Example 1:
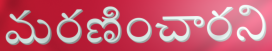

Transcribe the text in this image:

మరణించారని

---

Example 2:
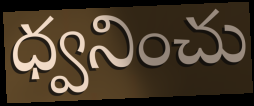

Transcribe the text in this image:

ధ్వనించు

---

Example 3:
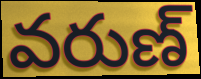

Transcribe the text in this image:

వరుణ్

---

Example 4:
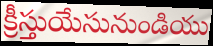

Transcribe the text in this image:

క్రీస్తుయేసునుండియు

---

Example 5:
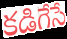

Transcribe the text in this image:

కడిగేసే